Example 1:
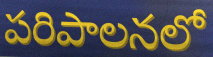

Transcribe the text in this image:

పరిపాలనలో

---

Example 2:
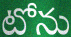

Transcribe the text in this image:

టోను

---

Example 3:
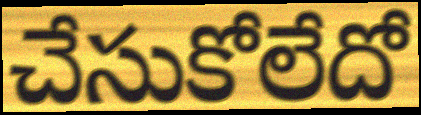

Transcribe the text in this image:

చేసుకోలేదో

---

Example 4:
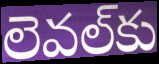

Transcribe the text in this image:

లెవల్‌కు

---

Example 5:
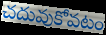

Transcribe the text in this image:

చదువుకోవటం